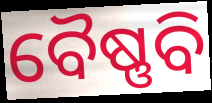
ବୈଷ୍ଣବି